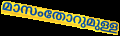
മാസംതോറുമുള്ള